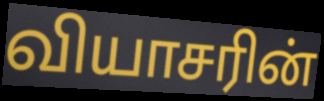
வியாசரின்